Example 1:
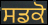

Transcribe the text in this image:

ਸਡਕੋ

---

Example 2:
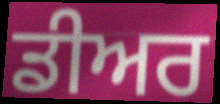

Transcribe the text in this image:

ਡੀਅਰ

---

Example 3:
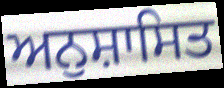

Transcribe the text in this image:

ਅਨੁਸ਼ਾਸਿਤ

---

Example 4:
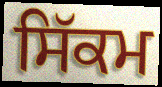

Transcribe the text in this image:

ਸਿੱਕਮ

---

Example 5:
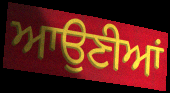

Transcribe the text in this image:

ਆਉਣੀਆਂ